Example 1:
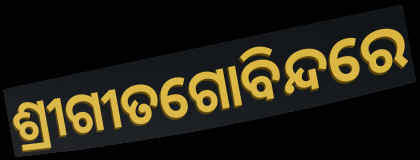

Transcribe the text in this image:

ଶ୍ରୀଗୀତଗୋବିନ୍ଦରେ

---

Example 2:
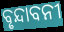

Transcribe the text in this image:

ବୃନ୍ଦାବନୀ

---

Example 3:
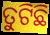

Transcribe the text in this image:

ତୁଟିଛି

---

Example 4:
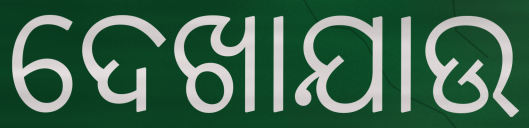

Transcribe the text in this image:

ଦେଖାଯାଉ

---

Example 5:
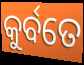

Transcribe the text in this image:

କୁର୍ବତେ